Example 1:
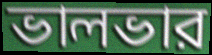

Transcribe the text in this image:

ভালভার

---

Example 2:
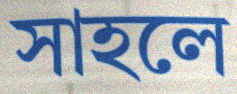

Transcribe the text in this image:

সাহলে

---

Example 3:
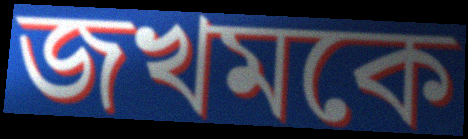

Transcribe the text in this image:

জখমকে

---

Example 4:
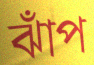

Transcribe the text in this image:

ঝাঁপ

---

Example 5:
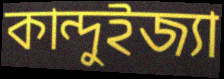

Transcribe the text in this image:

কান্দুইজ্যা